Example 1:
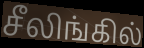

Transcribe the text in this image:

சீலிங்கில்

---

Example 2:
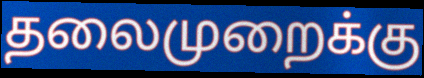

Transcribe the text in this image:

தலைமுறைக்கு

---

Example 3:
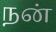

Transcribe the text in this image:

நன்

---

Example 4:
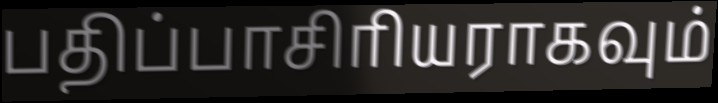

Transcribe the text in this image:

பதிப்பாசிரியராகவும்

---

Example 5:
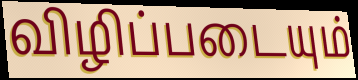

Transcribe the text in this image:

விழிப்படையும்